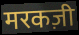
मरकज़ी